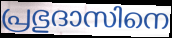
പ്രഭുദാസിനെ